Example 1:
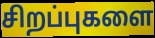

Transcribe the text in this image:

சிறப்புகளை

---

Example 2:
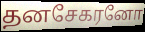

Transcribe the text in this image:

தனசேகரனோ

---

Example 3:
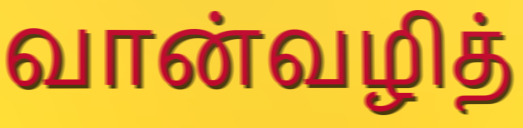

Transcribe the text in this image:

வான்வழித்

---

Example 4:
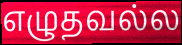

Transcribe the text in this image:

எழுதவல்ல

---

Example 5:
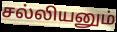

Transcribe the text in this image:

சல்லியனும்